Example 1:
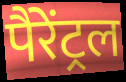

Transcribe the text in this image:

पैरेंट्रल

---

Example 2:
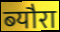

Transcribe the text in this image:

ब्‍यौरा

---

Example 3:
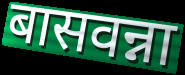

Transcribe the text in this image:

बासवन्ना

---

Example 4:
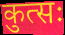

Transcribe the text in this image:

कुत्सः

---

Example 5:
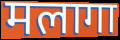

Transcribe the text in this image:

मलागा